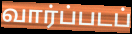
வார்ப்படப்